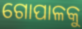
ଗୋପାଳକୁ